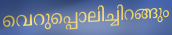
വെറുപ്പൊലിച്ചിറങ്ങും